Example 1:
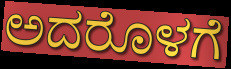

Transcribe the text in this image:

ಅದರೊಳಗೆ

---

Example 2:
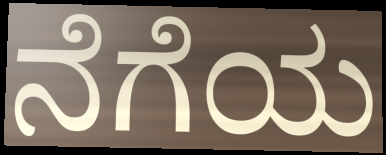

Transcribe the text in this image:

ನೆಗೆಯ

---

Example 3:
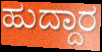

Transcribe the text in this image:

ಹುದ್ದಾರ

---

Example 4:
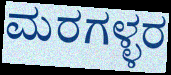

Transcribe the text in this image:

ಮರಗಳ್ಳರ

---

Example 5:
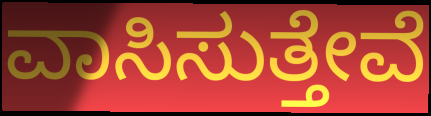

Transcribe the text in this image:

ವಾಸಿಸುತ್ತೇವೆ